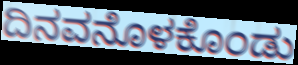
ದಿನವನೊಳಕೊಂಡು